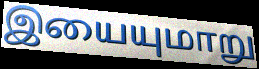
இயையுமாறு